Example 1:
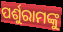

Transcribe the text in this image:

ପର୍ଶୁରାମଙ୍କୁ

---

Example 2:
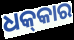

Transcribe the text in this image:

ଧକ୍‍କାର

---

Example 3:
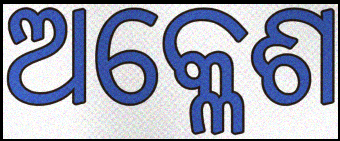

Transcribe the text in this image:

ଅକ୍ଳେଶ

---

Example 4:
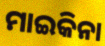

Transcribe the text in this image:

ମାଇକିନା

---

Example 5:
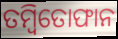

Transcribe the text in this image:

ତମ୍ବିତୋଫାନ